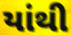
યાંથી